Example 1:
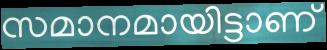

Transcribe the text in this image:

സമാനമായിട്ടാണ്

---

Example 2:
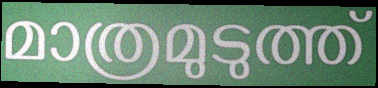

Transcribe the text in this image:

മാത്രമുടുത്ത്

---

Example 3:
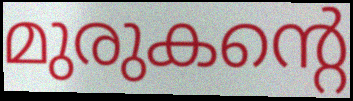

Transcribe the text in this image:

മുരുകന്റെ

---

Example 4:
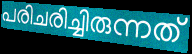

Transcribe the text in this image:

പരിചരിച്ചിരുന്നത്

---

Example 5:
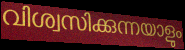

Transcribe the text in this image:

വിശ്വസിക്കുന്നയാളും